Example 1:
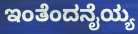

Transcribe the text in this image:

ಇಂತೆಂದನೈಯ್ಯ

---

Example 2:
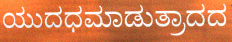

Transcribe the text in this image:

ಯುದಧಮಾಡುತ್ರಾದದ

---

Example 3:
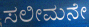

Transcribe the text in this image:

ಸಲೀಮನೇ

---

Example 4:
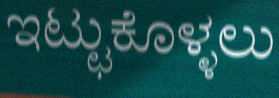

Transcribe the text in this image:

ಇಟ್ಟುಕೊಳ್ಳಲು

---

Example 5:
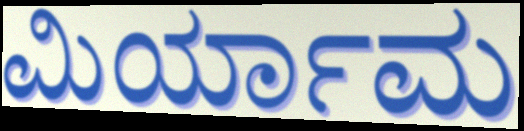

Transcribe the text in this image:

ಮಿರ್ಯಾಮ